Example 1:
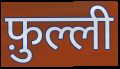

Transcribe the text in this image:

फ़ुल्ली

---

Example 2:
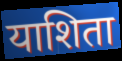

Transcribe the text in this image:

याशिता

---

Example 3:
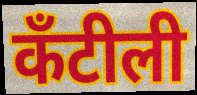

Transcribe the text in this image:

कँटीली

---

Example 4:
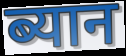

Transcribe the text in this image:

ब्यान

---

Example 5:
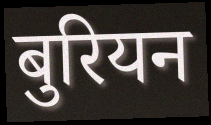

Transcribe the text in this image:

बुरियन